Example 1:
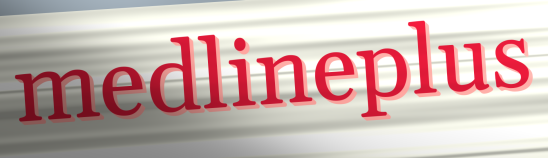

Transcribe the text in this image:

medlineplus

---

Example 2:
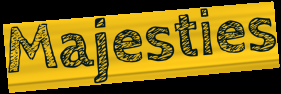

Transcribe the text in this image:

Majesties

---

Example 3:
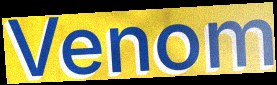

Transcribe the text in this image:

Venom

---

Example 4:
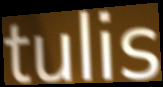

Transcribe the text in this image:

tulis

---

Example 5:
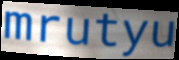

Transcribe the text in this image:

mrutyu